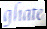
ghate